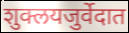
शुक्लयजुर्वेदात